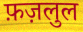
फ़ज़लुल